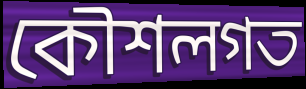
কৌশলগত